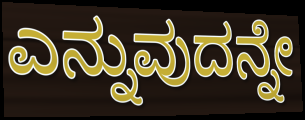
ಎನ್ನುವುದನ್ನೇ